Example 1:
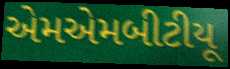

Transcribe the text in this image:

એમએમબીટીયૂ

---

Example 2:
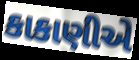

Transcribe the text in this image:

કાકાણીએ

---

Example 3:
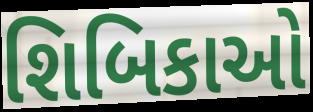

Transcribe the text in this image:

શિબિકાઓ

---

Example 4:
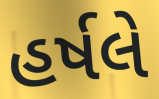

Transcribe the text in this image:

હર્ષલે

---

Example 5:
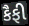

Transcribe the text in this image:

કૈફી